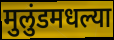
मुलुंडमधल्या